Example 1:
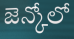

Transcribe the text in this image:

జెన్కోలో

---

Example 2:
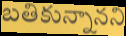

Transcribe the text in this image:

బతికున్నానని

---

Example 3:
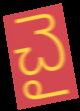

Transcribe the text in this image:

చై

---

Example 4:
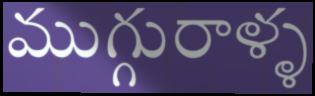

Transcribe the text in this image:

ముగ్గురాళ్ళ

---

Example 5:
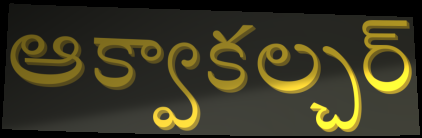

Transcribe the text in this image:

ఆక్వాకల్చర్